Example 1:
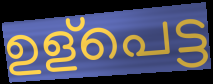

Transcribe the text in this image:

ഉള്പെട്ട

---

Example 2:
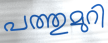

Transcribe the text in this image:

പത്തുമുറി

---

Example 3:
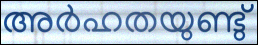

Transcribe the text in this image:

അർഹതയുണ്ടു്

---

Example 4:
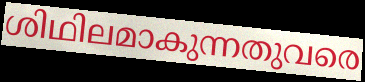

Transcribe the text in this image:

ശിഥിലമാകുന്നതുവരെ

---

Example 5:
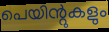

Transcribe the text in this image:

പെയിന്റുകളും